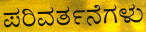
ಪರಿವರ್ತನೆಗಳು